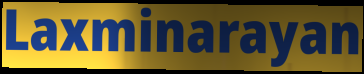
Laxminarayan